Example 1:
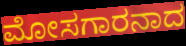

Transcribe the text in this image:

ಮೋಸಗಾರನಾದ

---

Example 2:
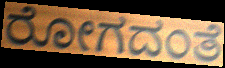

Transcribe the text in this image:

ರೋಗದಂತೆ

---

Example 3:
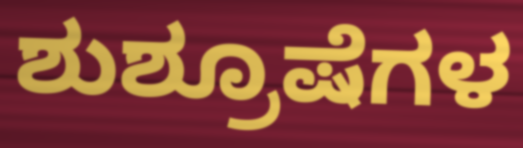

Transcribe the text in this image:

ಶುಶ್ರೂಷೆಗಳ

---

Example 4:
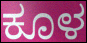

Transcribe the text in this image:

ಕೂಳ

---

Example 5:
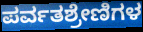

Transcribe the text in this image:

ಪರ್ವತಶ್ರೇಣಿಗಳ